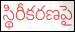
స్థిరీకరణపై